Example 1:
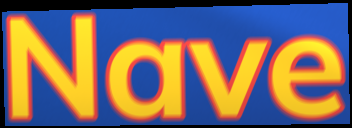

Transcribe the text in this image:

Nave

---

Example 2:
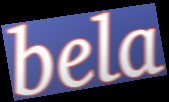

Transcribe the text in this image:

bela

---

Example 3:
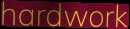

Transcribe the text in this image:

hardwork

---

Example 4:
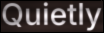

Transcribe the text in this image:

Quietly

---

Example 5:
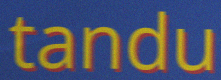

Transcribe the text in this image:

tandu